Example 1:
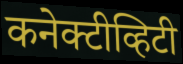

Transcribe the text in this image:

कनेक्टीव्हिटी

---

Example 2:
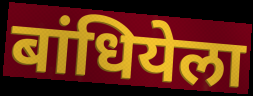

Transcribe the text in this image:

बांधियेला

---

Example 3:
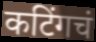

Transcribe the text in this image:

कटिंगचं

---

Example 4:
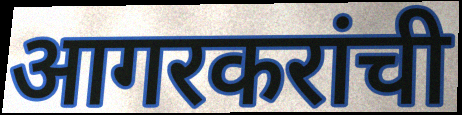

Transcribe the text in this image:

आगरकरांची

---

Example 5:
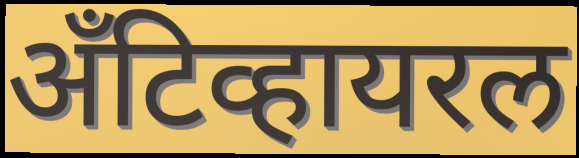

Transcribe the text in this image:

अँटिव्हायरल